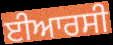
ਈਆਰਸੀ